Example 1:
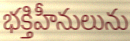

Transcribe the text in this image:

భక్తిహీనులును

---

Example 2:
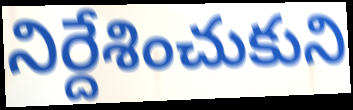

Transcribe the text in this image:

నిర్దేశించుకుని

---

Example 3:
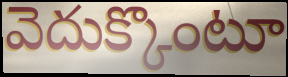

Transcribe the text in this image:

వెదుక్కొంటూ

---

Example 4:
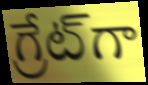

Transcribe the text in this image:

గ్రేట్‌గా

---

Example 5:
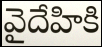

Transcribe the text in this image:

వైదేహికి